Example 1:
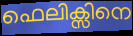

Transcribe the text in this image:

ഫെലിക്സിനെ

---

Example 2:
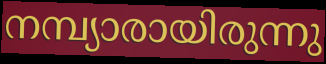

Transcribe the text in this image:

നമ്പ്യാരായിരുന്നു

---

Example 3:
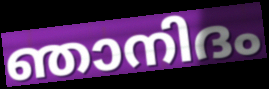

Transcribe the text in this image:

ഞാനിദം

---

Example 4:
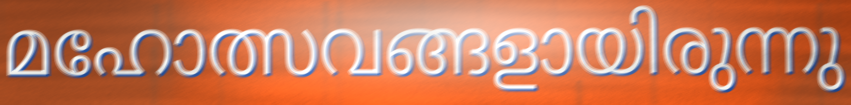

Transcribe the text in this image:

മഹോത്സവങ്ങളായിരുന്നു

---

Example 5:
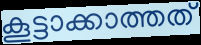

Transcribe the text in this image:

കൂട്ടാക്കാത്തത്